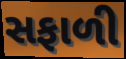
સફાળી